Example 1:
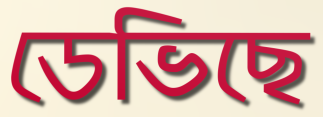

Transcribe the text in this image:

ডেভিছে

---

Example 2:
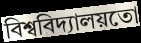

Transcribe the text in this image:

বিশ্ববিদ্যালয়তো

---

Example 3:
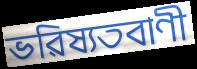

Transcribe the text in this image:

ভৱিষ্যতবাণী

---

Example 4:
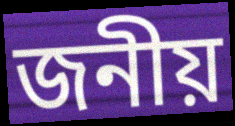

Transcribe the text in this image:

জনীয়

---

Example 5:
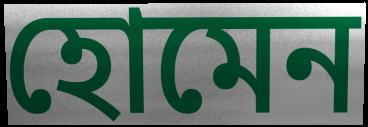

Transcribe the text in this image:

হোমেন